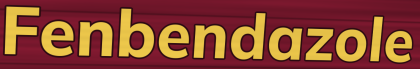
Fenbendazole